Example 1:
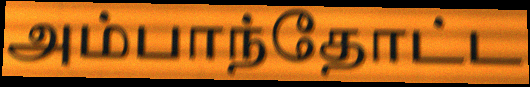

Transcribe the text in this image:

அம்பாந்தோட்ட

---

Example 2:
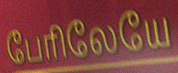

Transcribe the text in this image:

பேரிலேயே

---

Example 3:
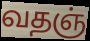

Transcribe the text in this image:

வதஞ்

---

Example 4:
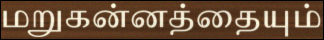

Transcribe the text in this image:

மறுகன்னத்தையும்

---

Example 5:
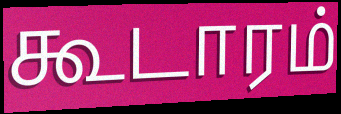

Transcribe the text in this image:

கூடாரம்